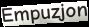
Empuzjon